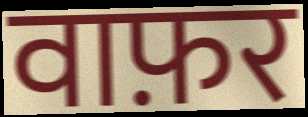
वाफ़र